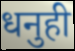
धनुही